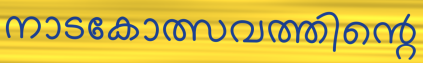
നാടകോത്സവത്തിന്റെ